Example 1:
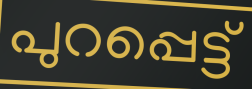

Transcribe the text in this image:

പുറപ്പെട്ട്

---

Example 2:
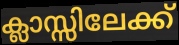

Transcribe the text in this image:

ക്ലാസ്സിലേക്ക്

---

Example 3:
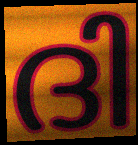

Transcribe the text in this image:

ദി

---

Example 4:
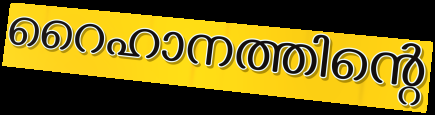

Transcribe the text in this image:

റൈഹാനത്തിന്റെ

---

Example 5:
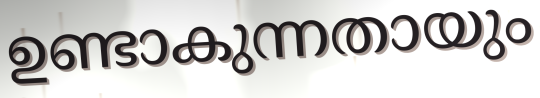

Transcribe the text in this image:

ഉണ്ടാകുന്നതായും